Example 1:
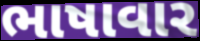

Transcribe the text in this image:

ભાષાવાર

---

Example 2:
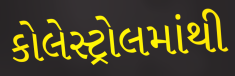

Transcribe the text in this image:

કોલેસ્ટ્રોલમાંથી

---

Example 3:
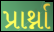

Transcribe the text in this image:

પ્રાર્થ્ના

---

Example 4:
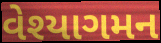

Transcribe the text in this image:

વેશ્યાગમન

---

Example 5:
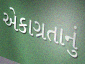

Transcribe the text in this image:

એકાગ્રતાનું